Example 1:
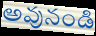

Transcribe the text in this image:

అవునండి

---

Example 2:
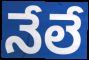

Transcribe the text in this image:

నేలే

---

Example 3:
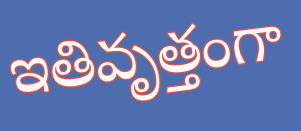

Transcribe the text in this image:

ఇతివృత్తంగా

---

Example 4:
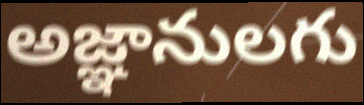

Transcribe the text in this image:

అజ్ఞానులగు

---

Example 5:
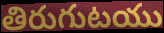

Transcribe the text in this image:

తిరుగుటయు